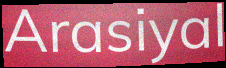
Arasiyal